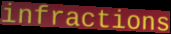
infractions